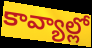
కావ్యాల్లో